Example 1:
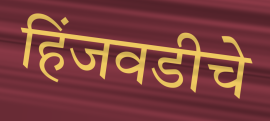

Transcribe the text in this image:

हिंजवडीचे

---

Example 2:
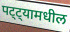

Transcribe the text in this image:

पट्ट्यामधील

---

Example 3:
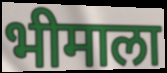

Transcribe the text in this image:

भीमाला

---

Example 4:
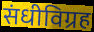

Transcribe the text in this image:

संधीविग्रह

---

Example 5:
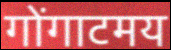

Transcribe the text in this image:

गोंगाटमय